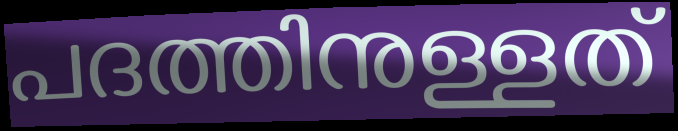
പദത്തിനുള്ളത്